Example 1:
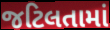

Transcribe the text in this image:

જટિલતામાં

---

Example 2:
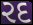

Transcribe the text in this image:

રદ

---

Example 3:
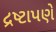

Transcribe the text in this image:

દ્રષ્ટાપણે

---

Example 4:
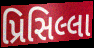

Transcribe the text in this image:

પ્રિસિલ્લા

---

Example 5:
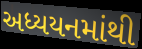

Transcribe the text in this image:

અધ્યયનમાંથી